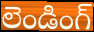
లెండింగ్